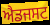
ਐਡਜਸਟ